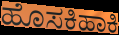
ಹೊಸಕಿಹಾಕಿ